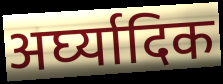
अर्घ्यादिक